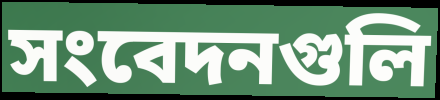
সংবেদনগুলি